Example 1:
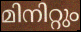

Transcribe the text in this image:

മിനിറ്റും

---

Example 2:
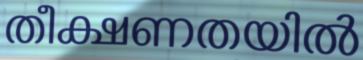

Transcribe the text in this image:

തീക്ഷണതയിൽ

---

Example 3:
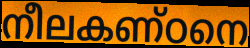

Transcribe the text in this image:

നീലകണ്ഠനെ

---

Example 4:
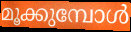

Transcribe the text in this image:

മൂക്കുമ്പോൾ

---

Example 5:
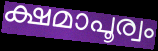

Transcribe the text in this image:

ക്ഷമാപൂര്വം